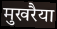
मुखरैया